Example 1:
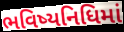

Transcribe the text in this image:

ભવિષ્યનિધિમાં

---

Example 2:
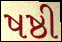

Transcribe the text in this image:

ષષ્ઠી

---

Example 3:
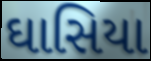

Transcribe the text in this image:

ઘાસિયા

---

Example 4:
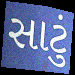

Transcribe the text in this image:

સાટું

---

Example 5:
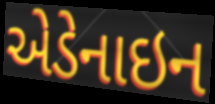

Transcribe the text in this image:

એડેનાઇન